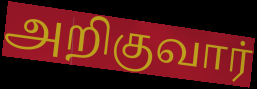
அறிகுவார்